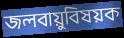
জলবায়ুবিষয়ক